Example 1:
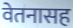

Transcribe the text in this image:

वेतनासह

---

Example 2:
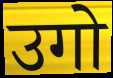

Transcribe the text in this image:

उगो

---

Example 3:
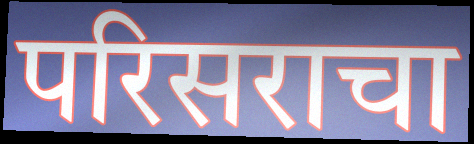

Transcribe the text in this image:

परिसराचा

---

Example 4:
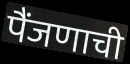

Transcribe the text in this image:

पैंजणाची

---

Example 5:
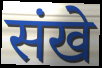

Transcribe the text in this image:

संखे